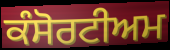
ਕੰਸੋਰਟੀਅਮ